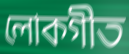
লোকগীত